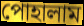
পোহালাম